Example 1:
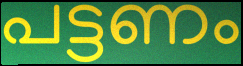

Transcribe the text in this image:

പട്ടണം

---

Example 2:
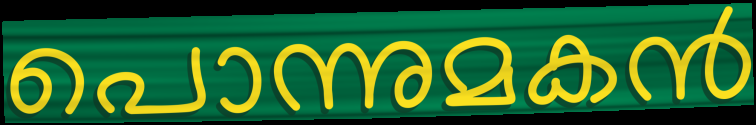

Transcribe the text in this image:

പൊന്നുമകൻ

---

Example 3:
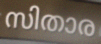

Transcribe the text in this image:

സിതാര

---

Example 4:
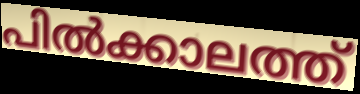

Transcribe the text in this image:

പിൽക്കാലത്ത്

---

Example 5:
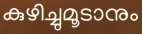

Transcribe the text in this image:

കുഴിച്ചുമൂടാനും